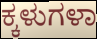
ಕ್ಕಳುಗಳಾ